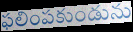
ఫలింపకుండును